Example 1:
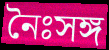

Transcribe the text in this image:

নৈঃসঙ্গ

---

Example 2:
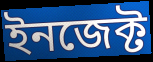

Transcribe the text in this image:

ইনজেক্ট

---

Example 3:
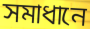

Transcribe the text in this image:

সমাধানে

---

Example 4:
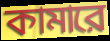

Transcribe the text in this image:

কামারে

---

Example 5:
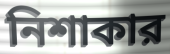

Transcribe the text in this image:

নিশাকার